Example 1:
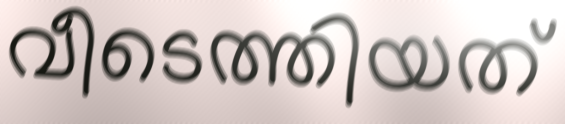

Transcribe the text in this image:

വീടെത്തിയത്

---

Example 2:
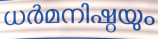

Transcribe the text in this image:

ധർമനിഷ്ഠയും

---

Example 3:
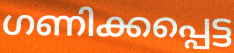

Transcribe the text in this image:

ഗണിക്കപ്പെട്ട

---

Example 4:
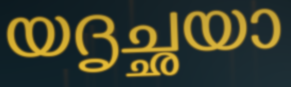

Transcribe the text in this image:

യദൃച്ഛയാ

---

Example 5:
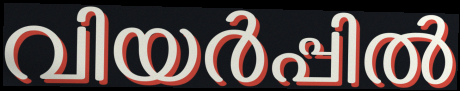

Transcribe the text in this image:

വിയർപ്പിൽ